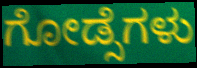
ಗೋಡ್ಸೆಗಳು